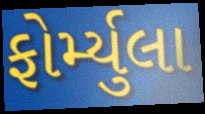
ફોર્મ્યુલા